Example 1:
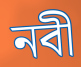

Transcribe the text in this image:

নবী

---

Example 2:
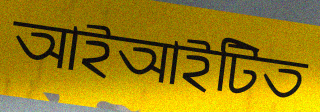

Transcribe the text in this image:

আইআইটিত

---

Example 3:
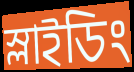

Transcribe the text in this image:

স্লাইডিং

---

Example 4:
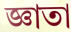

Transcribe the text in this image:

জ্ঞাতা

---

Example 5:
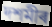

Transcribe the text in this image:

দশমীৰ